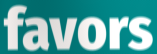
favors